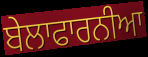
ਬੇਲਾਫਾਰਨੀਆ